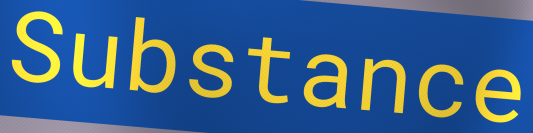
Substance